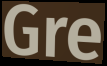
Gre